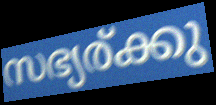
സഭ്യര്ക്കു